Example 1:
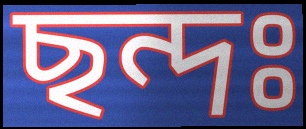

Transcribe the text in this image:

ছন্দঃ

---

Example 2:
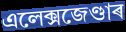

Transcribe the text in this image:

এলেক্সজেণ্ডাৰ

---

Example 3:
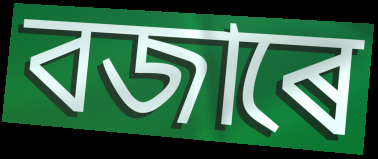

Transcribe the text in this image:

বজাৰে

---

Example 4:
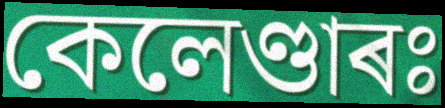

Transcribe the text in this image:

কেলেণ্ডাৰঃ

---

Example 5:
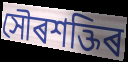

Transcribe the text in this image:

সৌৰশক্তিৰ